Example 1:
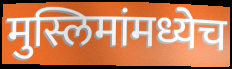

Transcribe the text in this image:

मुस्लिमांमध्येच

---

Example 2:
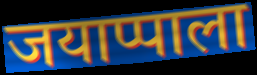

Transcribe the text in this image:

जयाप्पाला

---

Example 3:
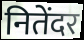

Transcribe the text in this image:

नितेंदर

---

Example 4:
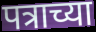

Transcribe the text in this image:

पत्राच्या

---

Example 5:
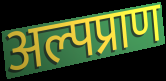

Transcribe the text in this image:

अल्पप्राण